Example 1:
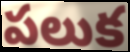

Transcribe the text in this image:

పలుక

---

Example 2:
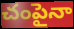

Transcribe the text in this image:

చంపైనా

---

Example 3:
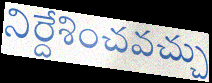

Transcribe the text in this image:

నిర్దేశించవచ్చు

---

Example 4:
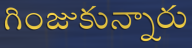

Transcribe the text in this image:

గింజుకున్నారు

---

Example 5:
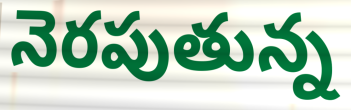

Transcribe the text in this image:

నెరపుతున్న